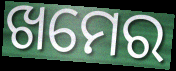
ଖମେର